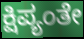
ಕ್ಷಿಪ್ಯಂತೇ